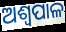
ଅଶ୍ୱପାଳ